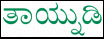
ತಾಯ್ನುಡಿ